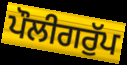
ਪੌਲੀਗਰੁੱਪ